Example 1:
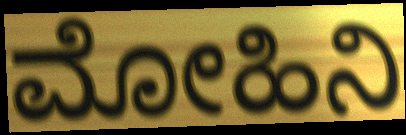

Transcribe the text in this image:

ಮೋಹಿನಿ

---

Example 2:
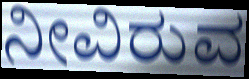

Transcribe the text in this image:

ನೀವಿರುವ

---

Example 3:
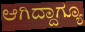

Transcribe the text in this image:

ಆಗಿದ್ದಾಗ್ಯೂ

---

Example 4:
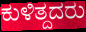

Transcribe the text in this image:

ಕುಳಿತ್ದದರು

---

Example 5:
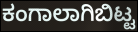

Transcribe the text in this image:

ಕಂಗಾಲಾಗಿಬಿಟ್ಟ